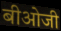
बीओजी